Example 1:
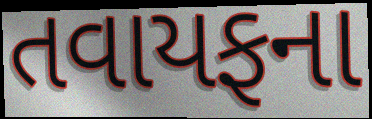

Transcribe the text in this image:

તવાયફના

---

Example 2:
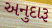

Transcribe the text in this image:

અનુદારૂ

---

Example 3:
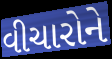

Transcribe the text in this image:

વીચારોને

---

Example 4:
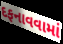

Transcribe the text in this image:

દફનાવવામાં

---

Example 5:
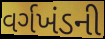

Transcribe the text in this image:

વર્ગખંડની